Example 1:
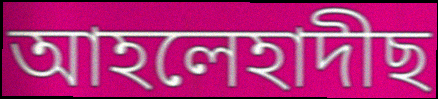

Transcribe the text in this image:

আহলেহাদীছ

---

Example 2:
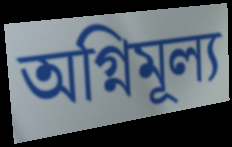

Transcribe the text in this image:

অগ্নিমূল্য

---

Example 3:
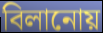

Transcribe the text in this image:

বিলানোয়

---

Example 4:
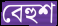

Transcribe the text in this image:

বেহুশ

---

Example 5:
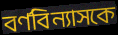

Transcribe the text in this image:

বর্ণবিন্যাসকে